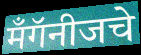
मँगॅनीजचे